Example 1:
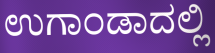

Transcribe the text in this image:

ಉಗಾಂಡಾದಲ್ಲಿ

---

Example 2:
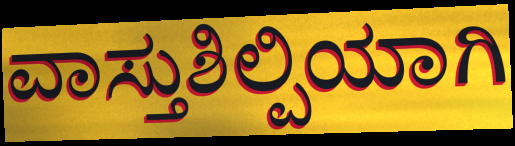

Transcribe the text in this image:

ವಾಸ್ತುಶಿಲ್ಪಿಯಾಗಿ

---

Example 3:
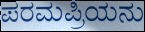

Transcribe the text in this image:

ಪರಮಪ್ರಿಯನು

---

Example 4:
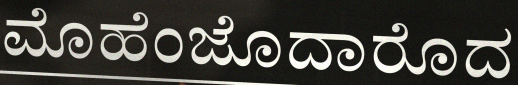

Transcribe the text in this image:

ಮೊಹೆಂಜೊದಾರೊದ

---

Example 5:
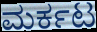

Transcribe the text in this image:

ಮರ್ಕಟ